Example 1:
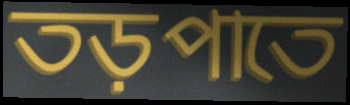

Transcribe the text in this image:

তড়পাতে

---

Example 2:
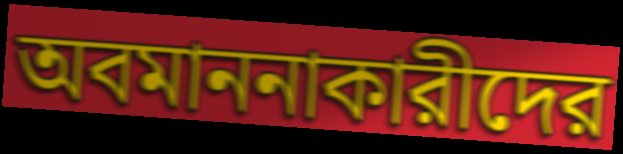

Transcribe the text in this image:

অবমাননাকারীদের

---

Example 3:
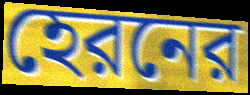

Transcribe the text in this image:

হেরনের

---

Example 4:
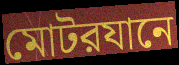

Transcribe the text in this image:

মোটরযানে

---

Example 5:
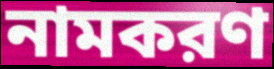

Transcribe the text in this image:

নামকরণ